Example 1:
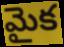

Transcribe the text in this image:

మైక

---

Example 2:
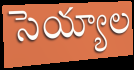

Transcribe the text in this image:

సెయ్యాల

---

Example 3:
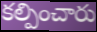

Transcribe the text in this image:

కల్పించారు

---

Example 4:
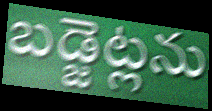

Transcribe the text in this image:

బడ్జెట్లను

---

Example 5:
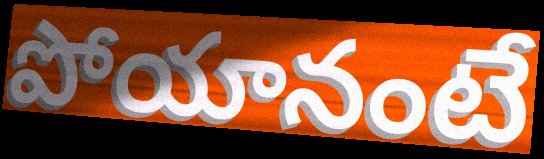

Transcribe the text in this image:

పోయానంటే